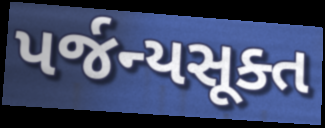
પર્જન્યસૂક્ત